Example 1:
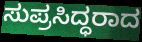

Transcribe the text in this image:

ಸುಪ್ರಸಿದ್ಧರಾದ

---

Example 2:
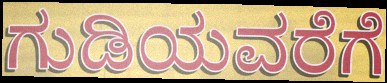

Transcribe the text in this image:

ಗುಡಿಯವರೆಗೆ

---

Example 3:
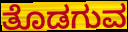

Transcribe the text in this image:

ತೊಡಗುವ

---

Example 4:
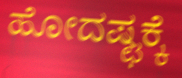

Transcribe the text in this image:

ಹೋದಷ್ಟಕ್ಕೆ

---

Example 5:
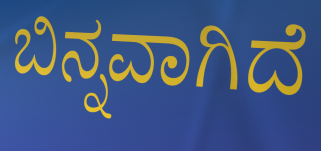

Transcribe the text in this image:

ಬಿನ್ನವಾಗಿದೆ